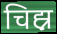
चिह्न